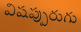
విషప్పురుగు